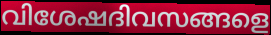
വിശേഷദിവസങ്ങളെ